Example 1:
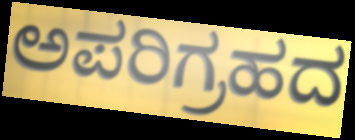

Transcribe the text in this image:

ಅಪರಿಗ್ರಹದ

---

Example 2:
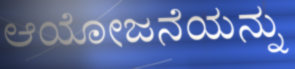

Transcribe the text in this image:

ಆಯೋಜನೆಯನ್ನು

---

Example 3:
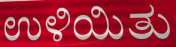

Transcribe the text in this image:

ಉಳಿಯಿತು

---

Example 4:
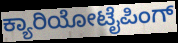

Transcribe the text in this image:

ಕ್ಯಾರಿಯೋಟೈಪಿಂಗ್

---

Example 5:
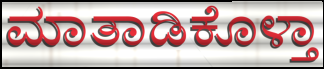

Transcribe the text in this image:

ಮಾತಾಡಿಕೊಳ್ತಾ